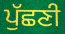
ਪੁੱਛਣੀ